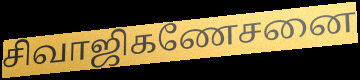
சிவாஜிகணேசனை